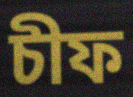
চীফ